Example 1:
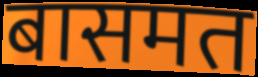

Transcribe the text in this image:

बासमत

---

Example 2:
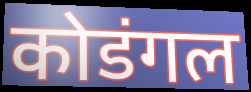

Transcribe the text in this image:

कोडंगल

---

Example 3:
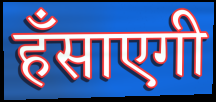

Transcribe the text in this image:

हँसाएगी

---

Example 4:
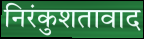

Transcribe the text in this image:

निरंकुशतावाद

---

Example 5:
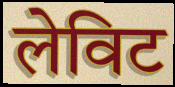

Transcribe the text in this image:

लेविट